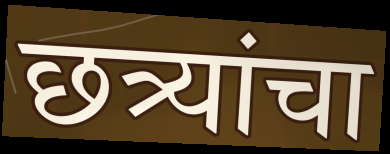
छत्र्यांचा